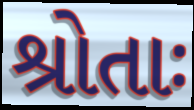
શ્રોતાઃ